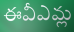
ఈవీఎమ్ల